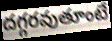
దగ్గరవుతూంటే